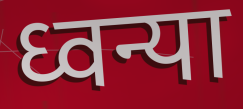
ध्वन्या